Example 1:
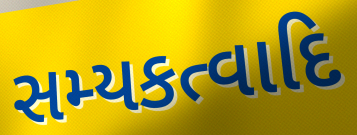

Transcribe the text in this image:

સમ્યકત્વાદિ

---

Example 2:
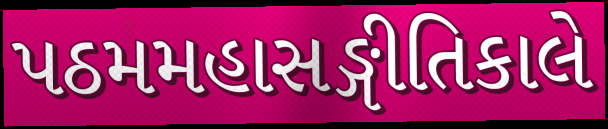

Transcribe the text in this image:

પઠમમહાસઙ્ગીતિકાલે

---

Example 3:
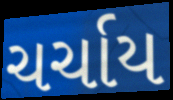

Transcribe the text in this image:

ચર્ચાય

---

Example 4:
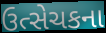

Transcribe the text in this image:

ઉત્સેચકના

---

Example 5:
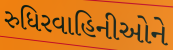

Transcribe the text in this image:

રુધિરવાહિનીઓને